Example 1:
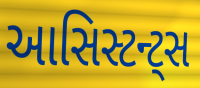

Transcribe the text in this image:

આસિસ્ટન્ટ્સ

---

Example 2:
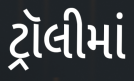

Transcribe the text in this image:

ટ્રૉલીમાં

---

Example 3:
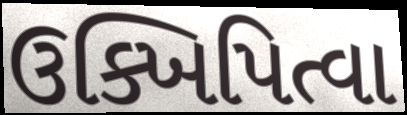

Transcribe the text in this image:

ઉક્ખિપિત્વા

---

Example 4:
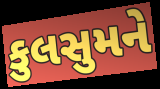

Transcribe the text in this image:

કુલસુમને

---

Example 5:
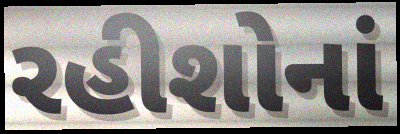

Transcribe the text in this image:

રહીશોનાં